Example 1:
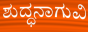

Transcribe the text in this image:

ಶುದ್ಧನಾಗುವಿ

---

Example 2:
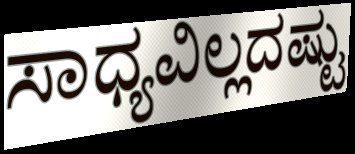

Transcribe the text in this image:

ಸಾಧ್ಯವಿಲ್ಲದಷ್ಟು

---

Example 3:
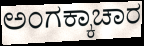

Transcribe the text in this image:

ಅಂಗಕ್ಕಾಚಾರ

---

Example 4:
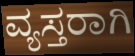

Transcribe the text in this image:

ವ್ಯಸ್ತರಾಗಿ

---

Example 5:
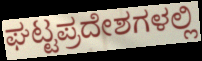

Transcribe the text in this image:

ಘಟ್ಟಪ್ರದೇಶಗಳಲ್ಲಿ